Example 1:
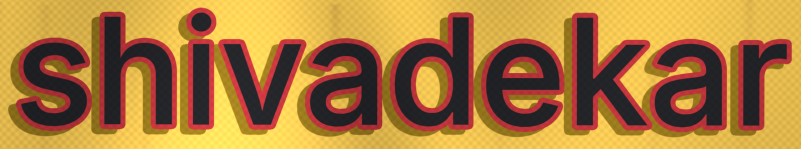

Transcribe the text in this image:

shivadekar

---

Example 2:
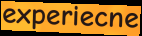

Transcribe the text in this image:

experiecne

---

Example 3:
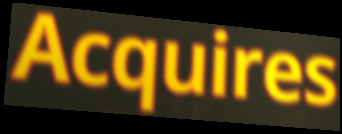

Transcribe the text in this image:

Acquires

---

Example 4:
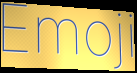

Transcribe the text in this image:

Emoji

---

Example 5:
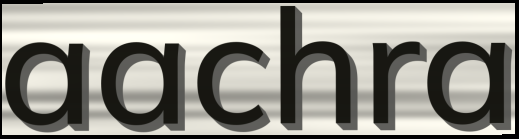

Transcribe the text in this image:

aachra